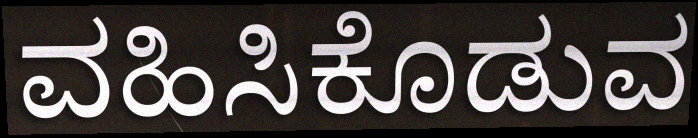
ವಹಿಸಿಕೊಡುವ